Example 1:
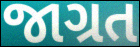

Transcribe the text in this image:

જાગ્રત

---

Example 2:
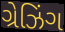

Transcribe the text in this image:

ગ્રેઝિંગ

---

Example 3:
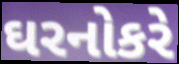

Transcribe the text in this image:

ઘરનોકરે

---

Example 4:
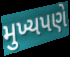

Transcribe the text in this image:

મુખ્યપણે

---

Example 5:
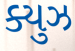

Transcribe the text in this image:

ક્યુઝ